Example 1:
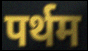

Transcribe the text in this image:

पर्थम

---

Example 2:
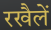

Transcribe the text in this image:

रखैलें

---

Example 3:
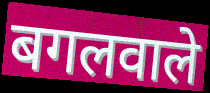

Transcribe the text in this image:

बगलवाले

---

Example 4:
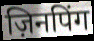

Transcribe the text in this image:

ज़िनपिंग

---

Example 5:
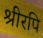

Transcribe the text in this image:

श्रीरपि